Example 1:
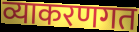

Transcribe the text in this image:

व्याकरणगत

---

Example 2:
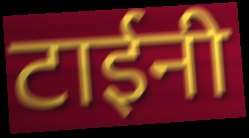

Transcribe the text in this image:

टाईनी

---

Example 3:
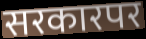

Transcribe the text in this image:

सरकारपर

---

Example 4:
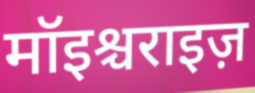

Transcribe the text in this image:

मॉइश्चराइज़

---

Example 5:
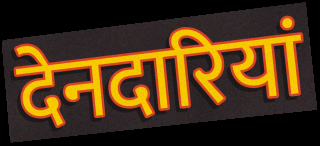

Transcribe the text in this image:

देनदारियां